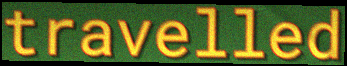
travelled